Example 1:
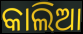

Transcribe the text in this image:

କାଲିଆ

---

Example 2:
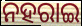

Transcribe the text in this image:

ନହରାଇ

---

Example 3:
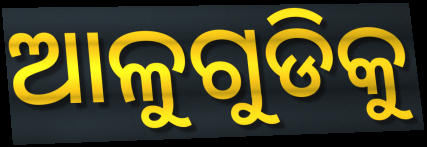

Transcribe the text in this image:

ଆଳୁଗୁଡିକୁ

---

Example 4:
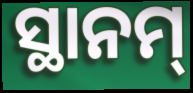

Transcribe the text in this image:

ସ୍ଥାନମ୍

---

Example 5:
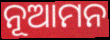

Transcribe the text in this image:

ନୂଆମନ